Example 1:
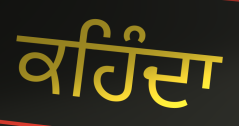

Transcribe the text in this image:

ਕਹਿੰਦਾ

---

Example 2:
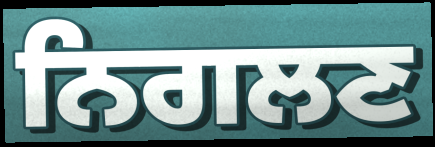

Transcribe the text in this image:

ਨਿਗਲਣ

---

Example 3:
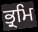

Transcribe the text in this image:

ਭ੍ਰਮਿ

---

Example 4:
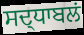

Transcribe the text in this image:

ਸਦ੍ਧਾਬਲਂ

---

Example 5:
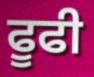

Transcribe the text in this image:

ਫੂਫੀ